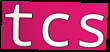
tcs